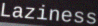
Laziness